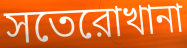
সতেরোখানা